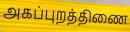
அகப்புறத்திணை